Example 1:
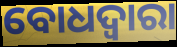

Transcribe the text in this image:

ବୋଧଦ୍ଵାରା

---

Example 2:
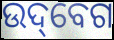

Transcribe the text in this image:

ଉଦ୍‌ବେଗ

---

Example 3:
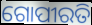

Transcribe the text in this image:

ଗୋପୀରତି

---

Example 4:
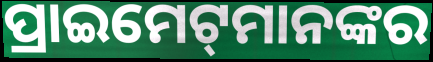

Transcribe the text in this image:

ପ୍ରାଇମେଟ୍‌ମାନଙ୍କର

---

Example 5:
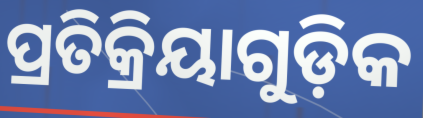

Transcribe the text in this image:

ପ୍ରତିକ୍ରିୟାଗୁଡ଼ିକ